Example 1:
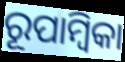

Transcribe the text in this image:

ରୂପାମ୍ବିକା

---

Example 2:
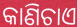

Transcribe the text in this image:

କାଣିଚାଏ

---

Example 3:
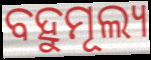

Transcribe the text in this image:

ବହୁମୂଲ୍ୟ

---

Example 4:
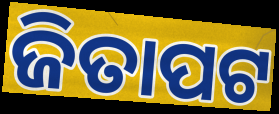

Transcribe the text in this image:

ଜିତାପଟ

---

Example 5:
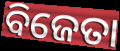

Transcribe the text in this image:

ବିଜେତା